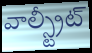
వాల్స్ట్రీట్